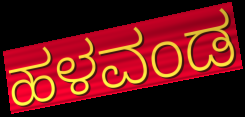
ಹಳವಂಡ